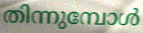
തിന്നുമ്പോൾ